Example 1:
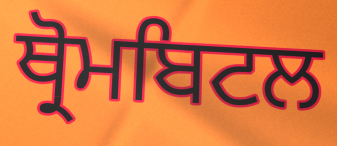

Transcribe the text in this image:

ਥ੍ਰੋਮਬਿਟਲ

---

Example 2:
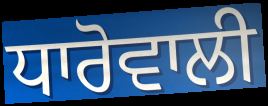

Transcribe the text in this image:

ਧਾਰੋਵਾਲੀ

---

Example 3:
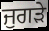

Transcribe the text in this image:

ਜੁਗੜੇ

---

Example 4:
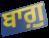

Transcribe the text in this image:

ਬਾਗ਼ੁ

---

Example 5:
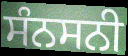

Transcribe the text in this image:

ਸੰਨਸਨੀ